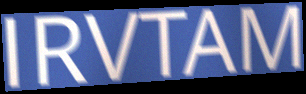
IRVTAM